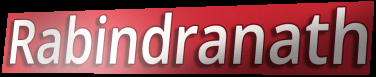
Rabindranath